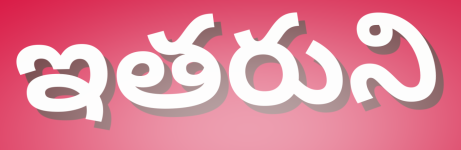
ఇతరుని